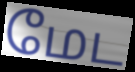
மேட